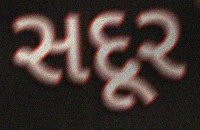
સદૂર